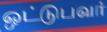
ஒட்டுபவர்